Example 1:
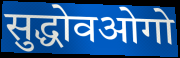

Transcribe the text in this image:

सुद्धोवओगो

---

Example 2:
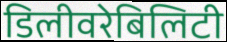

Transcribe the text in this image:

डिलीवरेबिलिटी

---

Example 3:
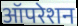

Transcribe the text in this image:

ऑपरेशन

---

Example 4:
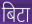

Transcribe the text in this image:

बिटा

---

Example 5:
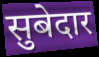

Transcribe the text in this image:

सुबेदार